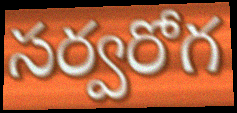
సర్వరోగ